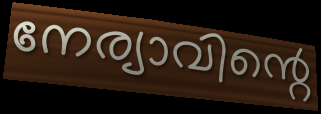
നേര്യാവിന്റെ